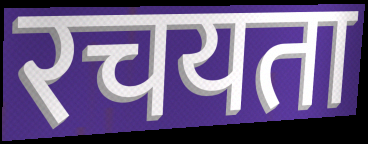
रचयता